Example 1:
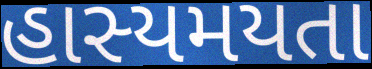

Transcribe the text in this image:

હાસ્યમયતા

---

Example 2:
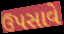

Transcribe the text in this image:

ઉપસાવે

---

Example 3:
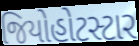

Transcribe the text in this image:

જિયોહોટસ્ટાર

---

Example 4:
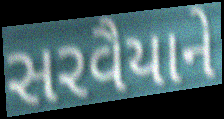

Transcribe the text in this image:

સરવૈયાને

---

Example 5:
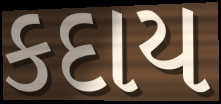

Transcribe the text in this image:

કદાય